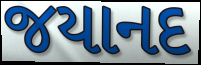
જયાનદ